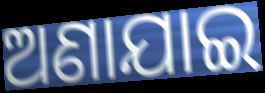
ଅଣାଯାଇ